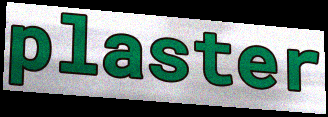
plaster